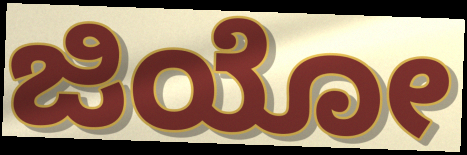
ಜಿಯೋ